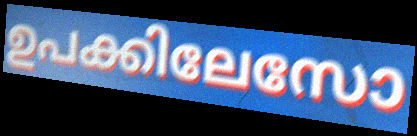
ഉപക്കിലേസോ